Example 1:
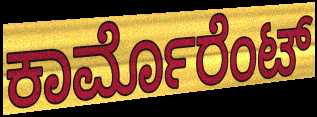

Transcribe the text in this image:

ಕಾರ್ಮೊರೆಂಟ್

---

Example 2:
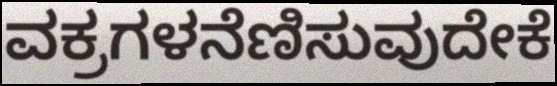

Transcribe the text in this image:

ವಕ್ರಗಳನೆಣಿಸುವುದೇಕೆ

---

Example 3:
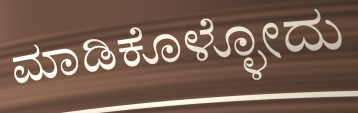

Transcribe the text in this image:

ಮಾಡಿಕೊಳ್ಳೋದು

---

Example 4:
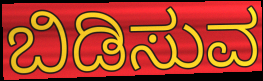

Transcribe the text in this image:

ಬಿಡಿಸುವ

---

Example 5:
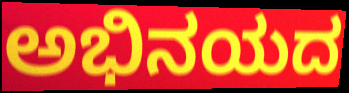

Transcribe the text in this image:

ಅಭಿನಯದ